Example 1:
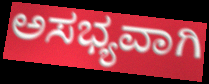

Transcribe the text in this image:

ಅಸಭ್ಯವಾಗಿ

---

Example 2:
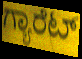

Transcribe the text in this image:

ಗ್ಯಾರೆಟ್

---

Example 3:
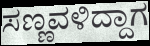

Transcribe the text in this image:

ಸಣ್ಣವಳಿದ್ದಾಗ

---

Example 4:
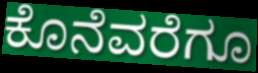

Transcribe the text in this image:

ಕೊನೆವರೆಗೂ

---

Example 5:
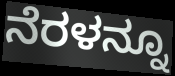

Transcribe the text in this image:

ನೆರಳನ್ನೂ